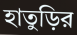
হাতুড়ির